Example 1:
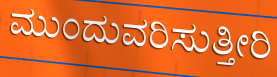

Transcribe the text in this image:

ಮುಂದುವರಿಸುತ್ತೀರಿ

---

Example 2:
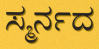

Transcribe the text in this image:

ಸ್ಮರ್ನದ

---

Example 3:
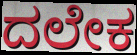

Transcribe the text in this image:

ದಲೇಕ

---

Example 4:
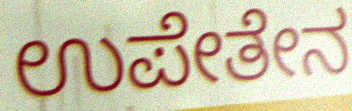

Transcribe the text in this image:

ಉಪೇತೇನ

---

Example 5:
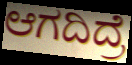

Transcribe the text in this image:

ಆಗದಿದ್ರೆ